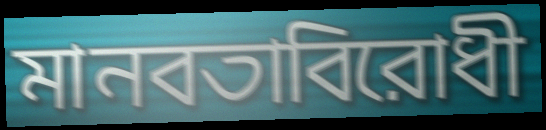
মানবতাবিরোধী